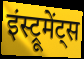
इंस्‍ट्रूमेंट्स